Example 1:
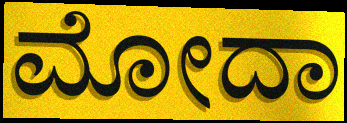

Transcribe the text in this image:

ಮೋದಾ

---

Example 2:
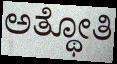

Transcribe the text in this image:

ಅತ್ಥೋತಿ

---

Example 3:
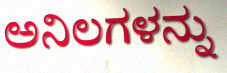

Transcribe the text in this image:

ಅನಿಲಗಳನ್ನು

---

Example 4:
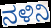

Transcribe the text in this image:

ನಳಿನಿ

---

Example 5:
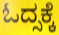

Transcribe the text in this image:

ಓದ್ಸಕ್ಕೆ